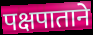
पक्षपाताने